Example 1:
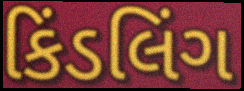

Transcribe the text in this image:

કિંડલિંગ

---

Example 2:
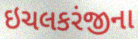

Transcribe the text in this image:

ઇચલકરંજીના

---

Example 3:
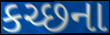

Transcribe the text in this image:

કચ્છના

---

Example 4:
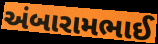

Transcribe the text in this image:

અંબારામભાઈ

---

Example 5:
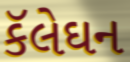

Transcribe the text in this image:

કૅલેઘન